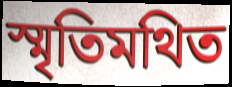
স্মৃতিমথিত